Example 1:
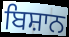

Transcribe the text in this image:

ਬਿਸ਼ਾਨ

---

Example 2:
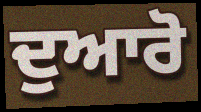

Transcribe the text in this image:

ਦੁਆਰੋ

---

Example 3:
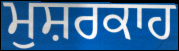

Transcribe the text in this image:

ਮੁਸ਼ਰਕਾਹ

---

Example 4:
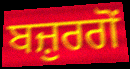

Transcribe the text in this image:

ਬਜ਼ੁਰਗੋਂ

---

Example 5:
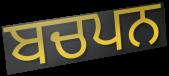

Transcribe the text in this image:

ਬਚਪਨ